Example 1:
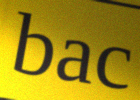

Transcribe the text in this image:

bac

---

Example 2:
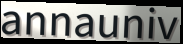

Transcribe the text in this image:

annauniv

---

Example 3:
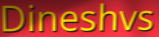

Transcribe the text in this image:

Dineshvs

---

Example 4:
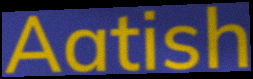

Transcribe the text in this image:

Aatish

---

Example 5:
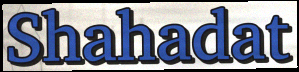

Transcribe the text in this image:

Shahadat